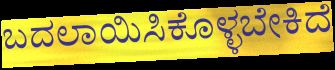
ಬದಲಾಯಿಸಿಕೊಳ್ಳಬೇಕಿದೆ